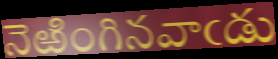
నెఱింగినవాఁడు